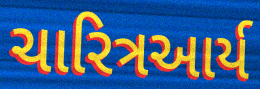
ચારિત્રઆર્ય